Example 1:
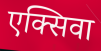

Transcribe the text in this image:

एक्सिवा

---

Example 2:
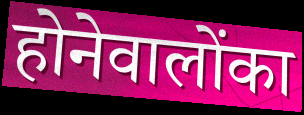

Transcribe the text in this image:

होनेवालोंका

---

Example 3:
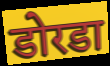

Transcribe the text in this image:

डोरडा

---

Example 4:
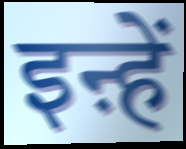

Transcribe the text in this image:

इऩ्हें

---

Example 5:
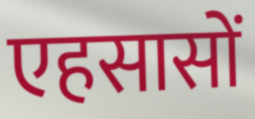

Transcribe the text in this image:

एहसासों